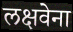
लक्षवेना